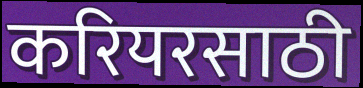
करियरसाठी